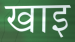
खाइ